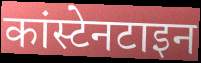
कांस्टेनटाइन